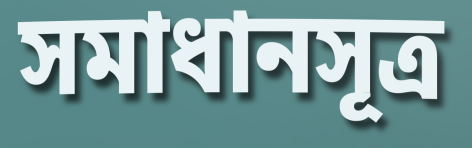
সমাধানসূত্ৰ